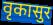
वृकासुर